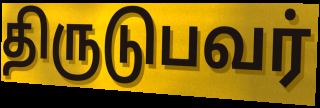
திருடுபவர்